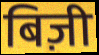
बिज़ी